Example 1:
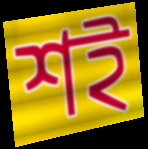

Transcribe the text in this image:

শই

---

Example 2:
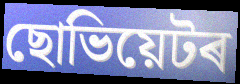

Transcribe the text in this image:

ছোভিয়েটৰ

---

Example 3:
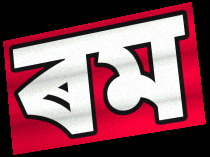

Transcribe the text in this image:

ৰম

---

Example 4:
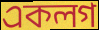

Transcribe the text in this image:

একলগ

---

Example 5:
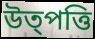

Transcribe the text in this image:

উত্পত্তি